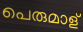
പെരുമാള്